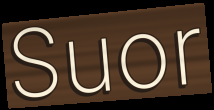
Suor